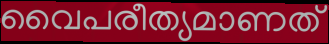
വൈപരീത്യമാണത്